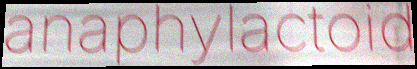
anaphylactoid